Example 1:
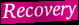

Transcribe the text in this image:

Recovery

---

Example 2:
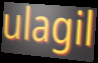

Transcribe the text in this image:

ulagil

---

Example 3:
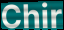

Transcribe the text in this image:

Chir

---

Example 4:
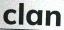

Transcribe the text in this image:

clan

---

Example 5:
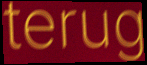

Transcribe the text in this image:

terug